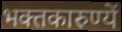
भक्तकारुण्यें